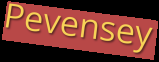
Pevensey